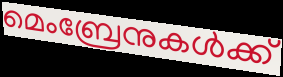
മെംബ്രേനുകൾക്ക്